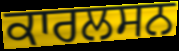
ਕਾਰਲਸਨ